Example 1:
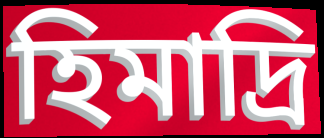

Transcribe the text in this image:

হিমাদ্রি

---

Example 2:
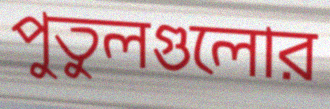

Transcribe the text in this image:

পুতুলগুলোর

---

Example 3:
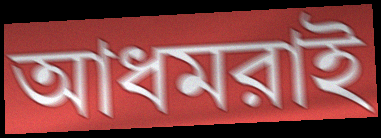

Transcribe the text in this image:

আধমরাই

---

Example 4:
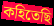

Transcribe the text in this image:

কহিতেছি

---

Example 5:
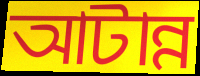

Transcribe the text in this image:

আটান্ন